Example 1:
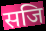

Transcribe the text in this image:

सजि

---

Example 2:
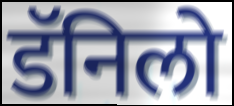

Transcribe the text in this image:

डॅनिलो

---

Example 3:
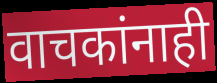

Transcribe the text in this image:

वाचकांनाही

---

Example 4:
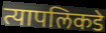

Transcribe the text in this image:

त्यापलिकडे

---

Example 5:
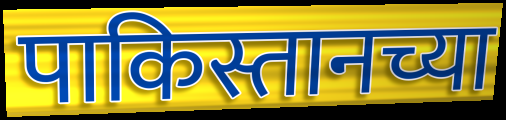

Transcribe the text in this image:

पाकिस्तानच्या